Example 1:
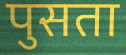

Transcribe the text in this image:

पुसता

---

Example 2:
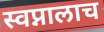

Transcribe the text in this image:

स्वप्नालाच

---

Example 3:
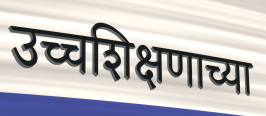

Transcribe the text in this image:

उच्चशिक्षणाच्या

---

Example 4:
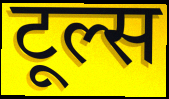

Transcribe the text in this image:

टूल्स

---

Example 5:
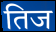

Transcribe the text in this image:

तिज